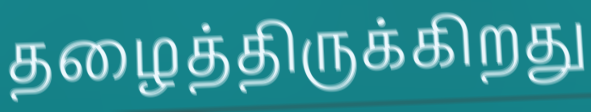
தழைத்திருக்கிறது